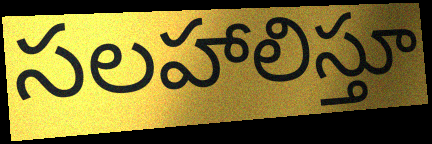
సలహాలిస్తూ